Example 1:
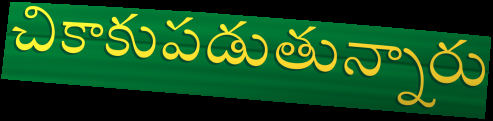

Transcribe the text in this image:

చికాకుపడుతున్నారు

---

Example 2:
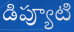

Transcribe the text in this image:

డిప్యూటి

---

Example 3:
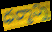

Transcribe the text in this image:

ధర్మాన్ని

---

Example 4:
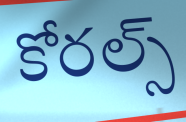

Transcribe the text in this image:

కోరల్స్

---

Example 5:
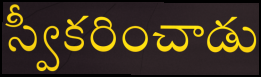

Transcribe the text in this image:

స్వీకరించాడు